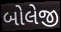
બોલેજી